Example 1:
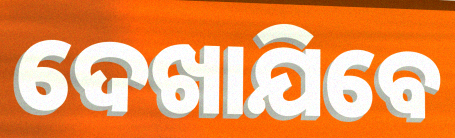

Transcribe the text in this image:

ଦେଖାଯିବେ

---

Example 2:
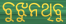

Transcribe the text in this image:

ବୁଝୁନଥିବୁ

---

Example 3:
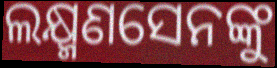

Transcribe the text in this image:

ଲକ୍ଷ୍ମଣସେନଙ୍କୁ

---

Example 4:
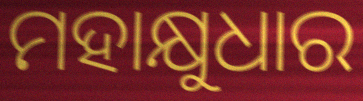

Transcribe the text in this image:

ମହାକ୍ଷୁଧାର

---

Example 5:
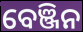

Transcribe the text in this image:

ବେଞ୍ଜିନ